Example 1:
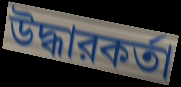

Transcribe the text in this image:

উদ্ধারকর্তা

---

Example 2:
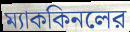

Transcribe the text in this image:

ম্যাককিনলের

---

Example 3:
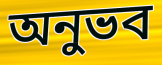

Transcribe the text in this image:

অনুভব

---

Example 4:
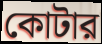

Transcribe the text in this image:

কোটার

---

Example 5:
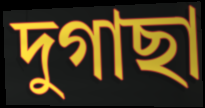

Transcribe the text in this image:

দুগাছা